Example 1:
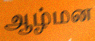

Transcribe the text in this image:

ஆழ்மன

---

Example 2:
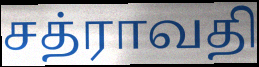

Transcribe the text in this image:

சத்ராவதி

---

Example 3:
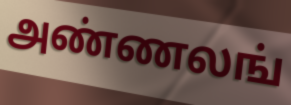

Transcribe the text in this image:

அண்ணலங்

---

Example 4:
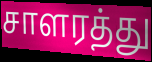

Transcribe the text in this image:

சாளரத்து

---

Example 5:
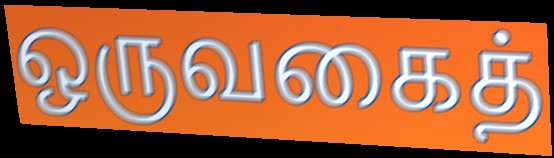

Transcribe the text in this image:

ஒருவகைத்